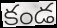
కండ